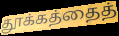
தூக்கத்தைத்